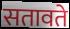
सतावते